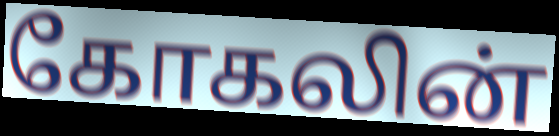
கோகலின்